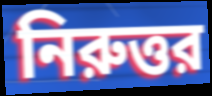
নিরুত্তর